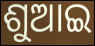
ଶୁଆଇ